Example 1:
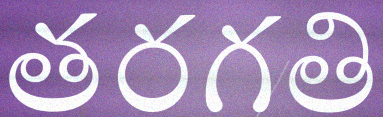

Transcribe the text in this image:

తరగతి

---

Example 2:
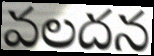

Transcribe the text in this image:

వలదన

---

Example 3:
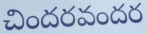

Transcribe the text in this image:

చిందరవందర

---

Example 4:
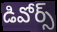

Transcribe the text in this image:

డివోర్స్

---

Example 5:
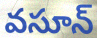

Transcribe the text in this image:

వసూన్